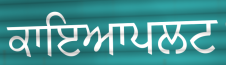
ਕਾਇਆਪਲਟ